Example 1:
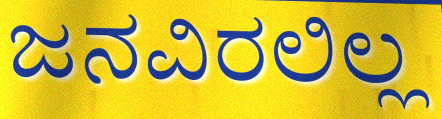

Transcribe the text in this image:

ಜನವಿರಲಿಲ್ಲ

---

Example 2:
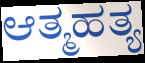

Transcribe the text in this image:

ಆತ್ಮಹತ್ಯ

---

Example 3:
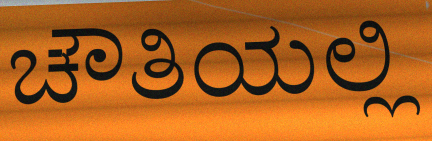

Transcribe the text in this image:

ಚೌತಿಯಲ್ಲಿ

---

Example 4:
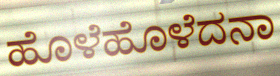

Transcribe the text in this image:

ಹೊಳೆಹೊಳೆದನಾ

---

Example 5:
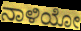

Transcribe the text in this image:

ನಾಳಿಯೋ